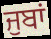
ਜੁਬਾਂ